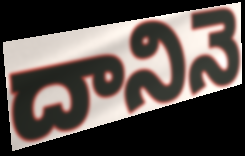
దానినె